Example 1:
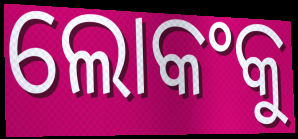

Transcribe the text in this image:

ଲୋକଂକୁ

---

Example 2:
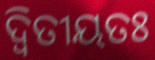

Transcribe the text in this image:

ଦ୍ବିତୀୟତଃ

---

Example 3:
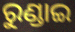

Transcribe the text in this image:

ରୁଣ୍ଡାଇ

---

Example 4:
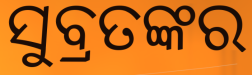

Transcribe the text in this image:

ସୁବ୍ରତଙ୍କର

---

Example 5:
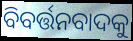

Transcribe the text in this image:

ବିବର୍ତ୍ତନବାଦକୁ